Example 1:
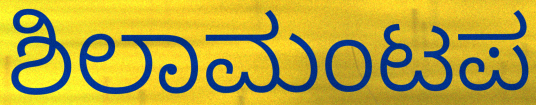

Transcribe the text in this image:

ಶಿಲಾಮಂಟಪ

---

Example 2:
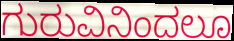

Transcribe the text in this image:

ಗುರುವಿನಿಂದಲೂ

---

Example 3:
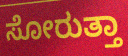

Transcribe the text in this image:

ಸೋರುತ್ತಾ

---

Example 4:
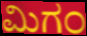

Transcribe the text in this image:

ಮಿಗಂ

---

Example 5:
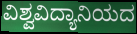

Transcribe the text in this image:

ವಿಶ್ವವಿದ್ಯಾನಿಯದ